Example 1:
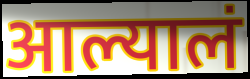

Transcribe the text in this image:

आल्यालं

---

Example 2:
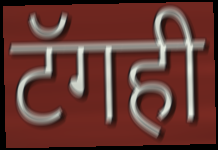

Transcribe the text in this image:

टॅगही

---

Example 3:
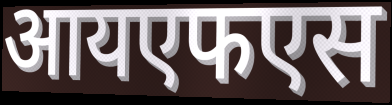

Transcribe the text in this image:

आयएफएस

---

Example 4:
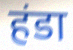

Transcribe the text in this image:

हंडा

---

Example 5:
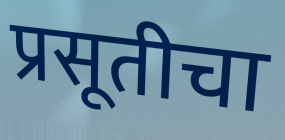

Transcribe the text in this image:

प्रसूतीचा